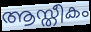
ആസ്തീകം